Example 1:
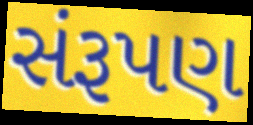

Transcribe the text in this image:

સંરૂપણ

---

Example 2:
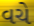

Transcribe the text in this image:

વચે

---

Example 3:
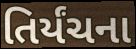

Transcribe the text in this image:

તિર્યંચના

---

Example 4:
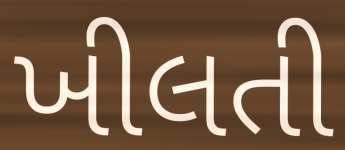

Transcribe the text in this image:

ખીલતી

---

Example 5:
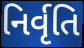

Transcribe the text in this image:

નિર્વૃતિ